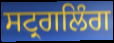
ਸਟ੍ਰਗਲਿੰਗ